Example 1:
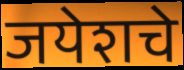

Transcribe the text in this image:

जयेशचे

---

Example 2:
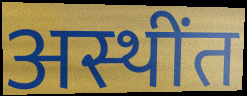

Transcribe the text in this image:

अस्थींत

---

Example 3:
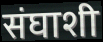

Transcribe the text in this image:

संघाशी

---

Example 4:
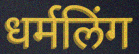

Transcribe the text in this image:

धर्मलिंग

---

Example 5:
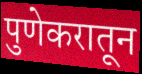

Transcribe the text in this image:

पुणेकरातून